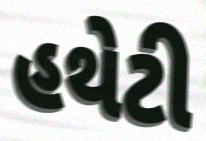
હથેટી